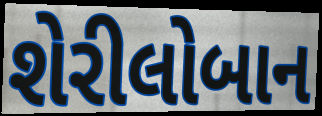
શેરીલોબાન